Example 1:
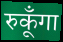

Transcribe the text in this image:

रुकूँगा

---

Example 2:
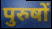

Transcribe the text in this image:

पुरुषों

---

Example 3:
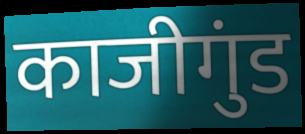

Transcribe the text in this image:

काजीगुंड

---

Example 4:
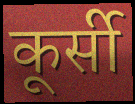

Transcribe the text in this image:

कूर्सी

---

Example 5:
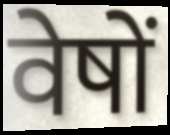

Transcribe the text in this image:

वेषों